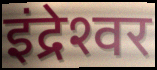
इंद्रेश्वर